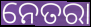
ନେତରା